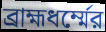
ব্রাহ্মধর্ম্মের